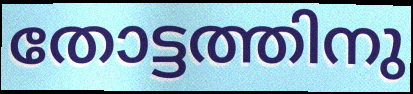
തോട്ടത്തിനു